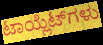
ಟಾಯ್ಲೆಟ್‌ಗಳು